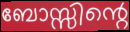
ബോസ്സിന്റെ